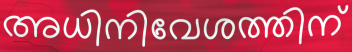
അധിനിവേശത്തിന്